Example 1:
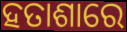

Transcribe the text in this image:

ହତାଶାରେ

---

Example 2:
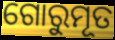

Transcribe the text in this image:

ଗୋରୁମୂତ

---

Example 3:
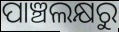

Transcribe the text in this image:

ପାଞ୍ଚଲକ୍ଷରୁ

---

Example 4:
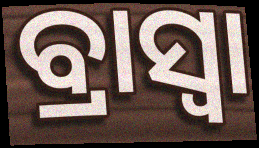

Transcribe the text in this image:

ବ୍ରାସ୍ବା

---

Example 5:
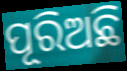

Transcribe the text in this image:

ପୂରିଅଛି